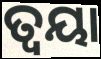
ତ୍ୱୟା